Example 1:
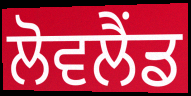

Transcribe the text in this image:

ਲੋਵਲੈਂਡ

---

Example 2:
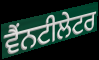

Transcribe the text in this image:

ਵੈਂਨਟੀਲੇਟਰ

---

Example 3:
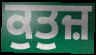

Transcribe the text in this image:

ਕੁਤੁਜ਼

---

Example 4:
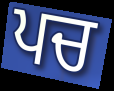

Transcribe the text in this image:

ਪਚ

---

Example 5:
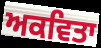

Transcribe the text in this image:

ਅਕਵਿਤਾ